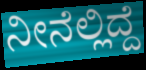
ನೀನೆಲ್ಲಿದ್ದೆ